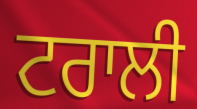
ਟਰਾਲੀ